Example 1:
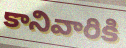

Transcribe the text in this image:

కానివారికి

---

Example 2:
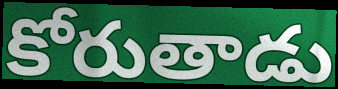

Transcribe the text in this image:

కోరుతాడు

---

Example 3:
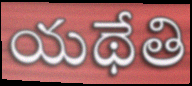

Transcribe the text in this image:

యథేతి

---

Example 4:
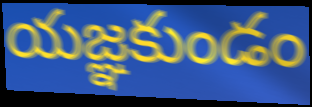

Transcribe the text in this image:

యజ్ఞకుండం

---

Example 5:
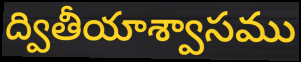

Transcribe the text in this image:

ద్వితీయాశ్వాసము